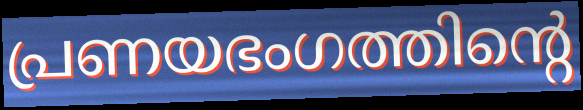
പ്രണയഭംഗത്തിന്റെ